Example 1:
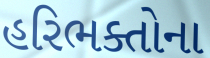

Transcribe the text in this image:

હરિભક્તોના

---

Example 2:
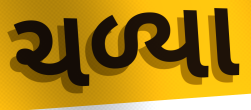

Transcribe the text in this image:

ચળ્યા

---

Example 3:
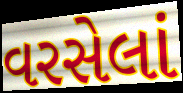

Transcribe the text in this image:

વરસેલાં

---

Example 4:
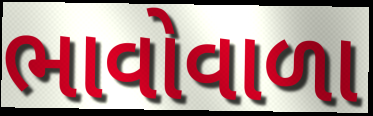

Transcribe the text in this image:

ભાવોવાળા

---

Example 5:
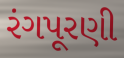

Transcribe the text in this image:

રંગપૂરણી